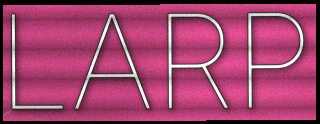
LARP